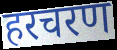
हरचरण